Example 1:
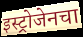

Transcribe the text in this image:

इस्ट्रोजेनचा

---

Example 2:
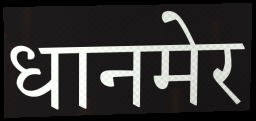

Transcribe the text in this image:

धानमेर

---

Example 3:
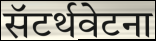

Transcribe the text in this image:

सॅटर्थवेटना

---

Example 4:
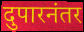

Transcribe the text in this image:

दुपारनंतर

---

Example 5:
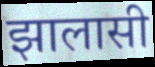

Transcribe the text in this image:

झालासी